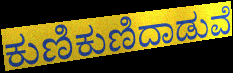
ಕುಣಿಕುಣಿದಾಡುವೆ